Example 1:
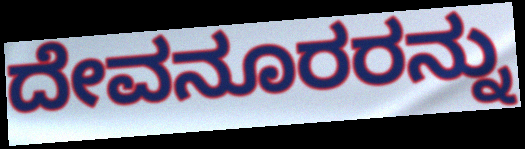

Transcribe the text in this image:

ದೇವನೂರರನ್ನು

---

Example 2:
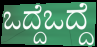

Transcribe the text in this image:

ಒದ್ದೆಒದ್ದೆ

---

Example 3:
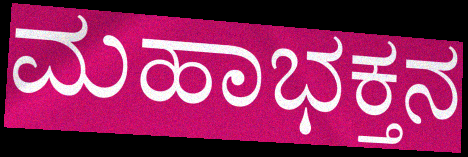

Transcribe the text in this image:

ಮಹಾಭಕ್ತನ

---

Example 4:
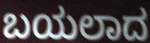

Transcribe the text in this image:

ಬಯಲಾದ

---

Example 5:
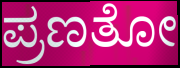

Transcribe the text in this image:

ಪ್ರಣತೋ